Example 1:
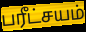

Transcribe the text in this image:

பரீட்சயம்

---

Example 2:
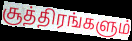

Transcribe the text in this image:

சூத்திரங்களும்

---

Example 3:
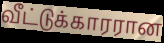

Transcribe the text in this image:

வீட்டுக்காரரான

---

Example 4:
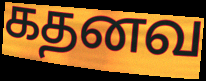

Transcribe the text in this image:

கதனவ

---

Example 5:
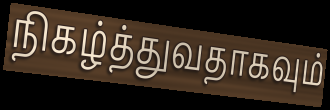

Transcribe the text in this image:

நிகழ்த்துவதாகவும்